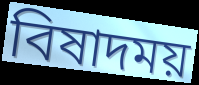
বিষাদময়